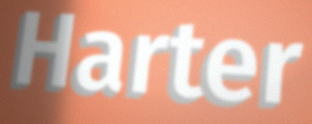
Harter